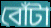
বোঁটা